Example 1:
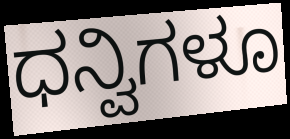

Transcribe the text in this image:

ಧನ್ವಿಗಳೂ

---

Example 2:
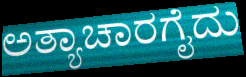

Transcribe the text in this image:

ಅತ್ಯಾಚಾರಗೈದು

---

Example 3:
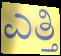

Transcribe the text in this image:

ಎತ್ತಿ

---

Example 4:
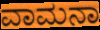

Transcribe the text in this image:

ವಾಮನಾ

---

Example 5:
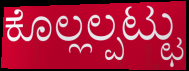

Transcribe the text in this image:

ಕೊಲ್ಲಲ್ಪಟ್ಟು